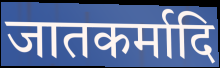
जातकर्मादि